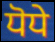
ਧੋਧੇ